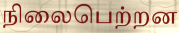
நிலைபெற்றன